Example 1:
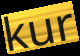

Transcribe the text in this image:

kur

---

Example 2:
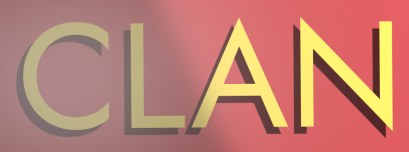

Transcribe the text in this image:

CLAN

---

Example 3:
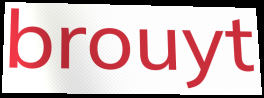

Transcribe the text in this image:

brouyt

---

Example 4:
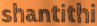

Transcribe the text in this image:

shantithi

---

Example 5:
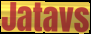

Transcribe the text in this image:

Jatavs